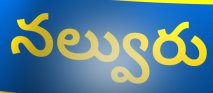
నల్వురు